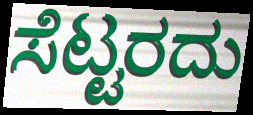
ಸೆಟ್ಟರದು